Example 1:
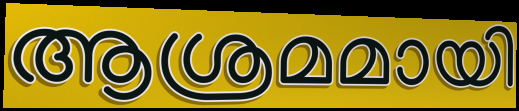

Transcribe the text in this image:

ആശ്രമമായി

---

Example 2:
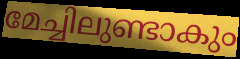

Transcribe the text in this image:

മേച്ചിലുണ്ടാകും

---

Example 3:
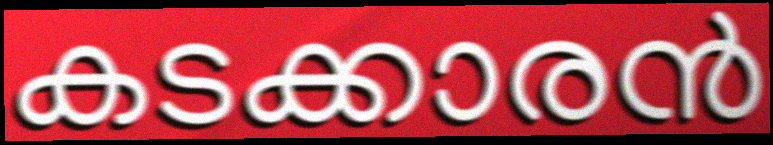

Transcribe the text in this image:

കടക്കാരൻ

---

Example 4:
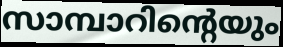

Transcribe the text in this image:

സാമ്പാറിന്റെയും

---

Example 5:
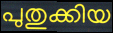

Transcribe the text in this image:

പുതുക്കിയ